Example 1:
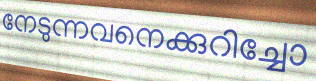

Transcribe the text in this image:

നേടുന്നവനെക്കുറിച്ചോ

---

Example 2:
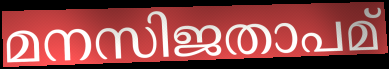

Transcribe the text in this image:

മനസിജതാപമ്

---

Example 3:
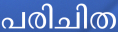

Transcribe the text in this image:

പരിചിത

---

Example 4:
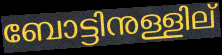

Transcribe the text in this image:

ബോട്ടിനുള്ളില്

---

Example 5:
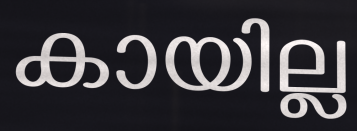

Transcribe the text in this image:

കായില്ല